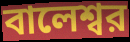
বালেশ্বর